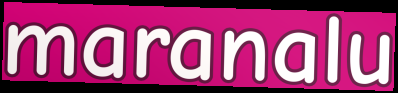
maranalu